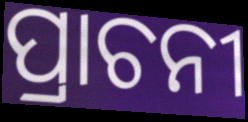
ପ୍ରାଚନୀ